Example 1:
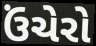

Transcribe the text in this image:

ઉંચેરો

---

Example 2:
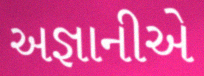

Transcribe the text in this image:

અજ્ઞાનીએ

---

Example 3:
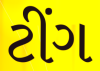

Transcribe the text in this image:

ટીંગ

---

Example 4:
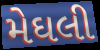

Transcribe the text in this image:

મેઘલી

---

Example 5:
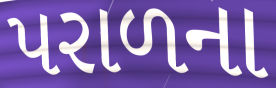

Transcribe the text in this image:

પરાળના